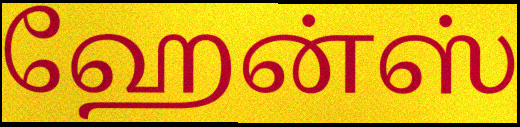
ஹேன்ஸ்